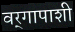
वर्गापाशी